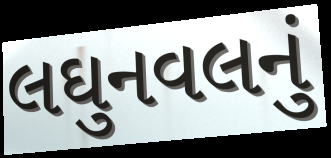
લઘુનવલનું